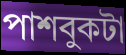
পাশবুকটা